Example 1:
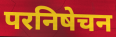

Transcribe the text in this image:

परनिषेचन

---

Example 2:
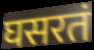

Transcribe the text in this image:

घसरतं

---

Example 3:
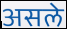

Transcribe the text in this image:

असले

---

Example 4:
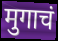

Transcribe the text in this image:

मुगाचं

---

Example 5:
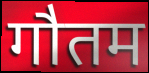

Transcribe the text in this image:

गौतम